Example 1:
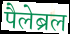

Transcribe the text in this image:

पैलेब्रल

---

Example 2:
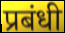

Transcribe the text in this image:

प्रबंधी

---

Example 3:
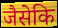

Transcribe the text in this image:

जैसेकि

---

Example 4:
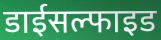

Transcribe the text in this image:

डाईसल्फाइड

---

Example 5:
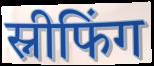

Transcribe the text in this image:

स्नीफिंग